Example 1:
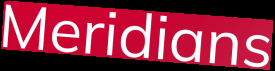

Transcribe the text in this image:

Meridians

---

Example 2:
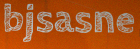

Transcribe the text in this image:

bjsasne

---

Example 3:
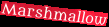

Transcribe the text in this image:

Marshmallow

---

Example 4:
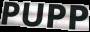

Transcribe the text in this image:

PUPP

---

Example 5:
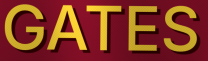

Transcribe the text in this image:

GATES